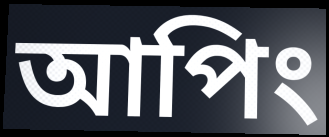
আপিং